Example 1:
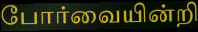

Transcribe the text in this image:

போர்வையின்றி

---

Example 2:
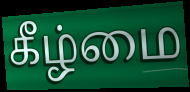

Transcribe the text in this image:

கீழ்மை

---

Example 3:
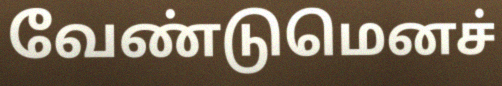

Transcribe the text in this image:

வேண்டுமெனச்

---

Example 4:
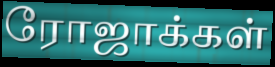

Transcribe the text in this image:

ரோஜாக்கள்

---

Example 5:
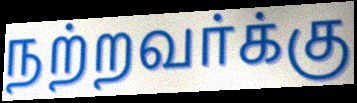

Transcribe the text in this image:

நற்றவர்க்கு